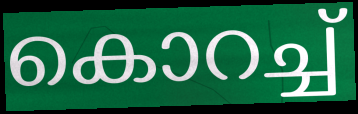
കൊറച്ച്